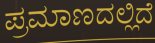
ಪ್ರಮಾಣದಲ್ಲಿದೆ